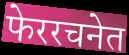
फेररचनेत